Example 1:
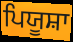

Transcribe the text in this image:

ਪਿਯੂਸ਼ਾ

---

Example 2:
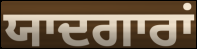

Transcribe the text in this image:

ਯਾਦਗਾਰਾਂ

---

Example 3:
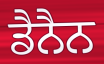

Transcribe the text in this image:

ਡੈਨੈਨ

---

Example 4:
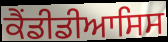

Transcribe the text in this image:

ਕੈਂਡੀਡੀਆਸਿਸ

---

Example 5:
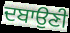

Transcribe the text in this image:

ਦਬਾਉਣੀ